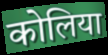
कोलिया